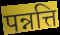
पन्नत्ति